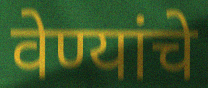
वेण्यांचे